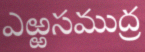
ఎఱ్ఱసముద్ర